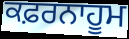
ਕਫ਼ਰਨਾਹੂਮ